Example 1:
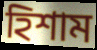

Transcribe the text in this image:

হিশাম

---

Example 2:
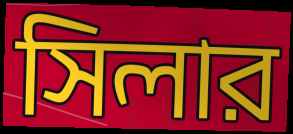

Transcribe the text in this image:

সিলার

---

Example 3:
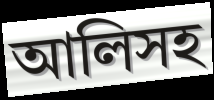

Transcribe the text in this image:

আলিসহ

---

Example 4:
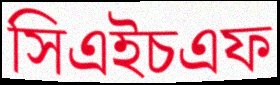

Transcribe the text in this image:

সিএইচএফ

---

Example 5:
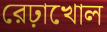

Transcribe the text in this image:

রেঢ়াখোল